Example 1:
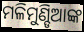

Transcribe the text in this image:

ମଳିମୁଣ୍ଡିଆଙ୍କ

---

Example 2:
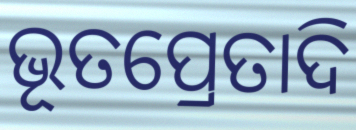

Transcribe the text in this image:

ଭୂତପ୍ରେତାଦି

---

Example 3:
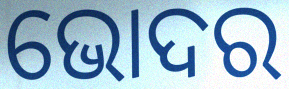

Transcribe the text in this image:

ଭୋଦର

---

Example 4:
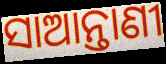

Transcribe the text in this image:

ସାଆନ୍ତାଣୀ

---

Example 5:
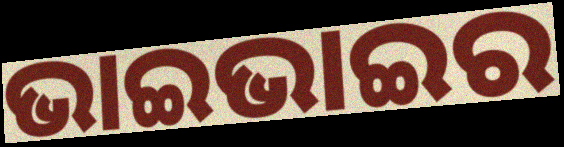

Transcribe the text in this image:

ଭାଇଭାଇର